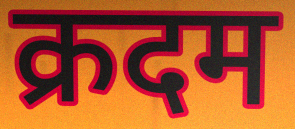
क्रदम